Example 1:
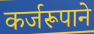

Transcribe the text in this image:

कर्जरूपाने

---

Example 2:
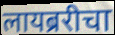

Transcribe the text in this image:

लायब्ररीचा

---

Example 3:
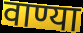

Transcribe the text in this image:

वाण्या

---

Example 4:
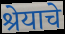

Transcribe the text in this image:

श्रेयाचे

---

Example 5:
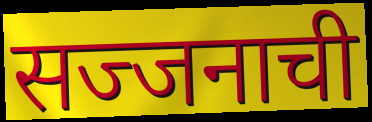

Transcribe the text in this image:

सज्जनाची